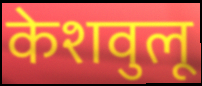
केशवुलू